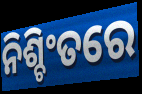
ନିଶ୍ଚିଂତରେ